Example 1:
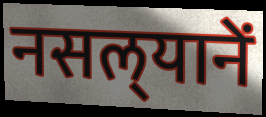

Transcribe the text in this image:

नसल्यानें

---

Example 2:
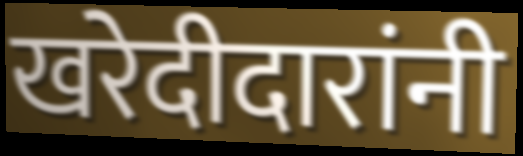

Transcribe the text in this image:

खरेदीदारांनी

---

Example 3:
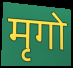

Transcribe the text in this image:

मृगो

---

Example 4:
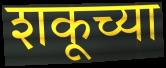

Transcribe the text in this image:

शकूच्या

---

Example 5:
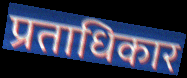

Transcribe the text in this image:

प्रताधिकार